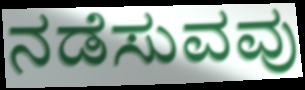
ನಡೆಸುವವು